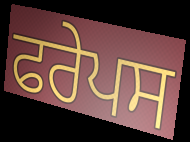
ਫਰੇਪਸ